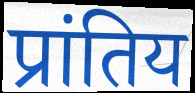
प्रांतिय